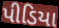
પીડિયા